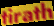
tirath